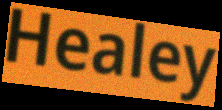
Healey